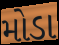
મોડા